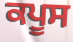
ਕਪੂਸ